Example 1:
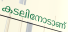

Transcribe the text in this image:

കടലിനോടാണ്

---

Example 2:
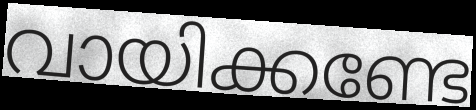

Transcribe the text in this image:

വായിക്കണ്ടേ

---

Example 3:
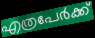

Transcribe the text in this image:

എത്രപേർക്ക്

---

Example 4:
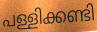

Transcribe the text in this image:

പള്ളിക്കണ്ടി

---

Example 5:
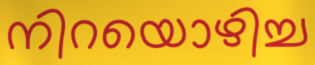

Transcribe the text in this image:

നിറയൊഴിച്ച